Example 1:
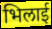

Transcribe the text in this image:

भिलाई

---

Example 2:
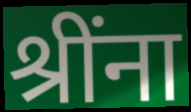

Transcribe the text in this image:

श्रींना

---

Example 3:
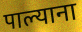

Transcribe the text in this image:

पाल्याना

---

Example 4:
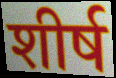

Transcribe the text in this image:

शीर्ष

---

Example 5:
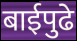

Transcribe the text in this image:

बाईपुढे